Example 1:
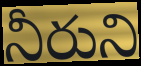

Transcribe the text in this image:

నీరుని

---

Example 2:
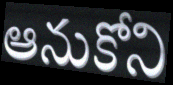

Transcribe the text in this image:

ఆనుకోని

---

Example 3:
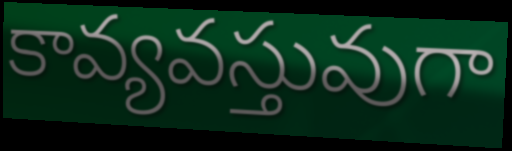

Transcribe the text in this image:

కావ్యవస్తువుగా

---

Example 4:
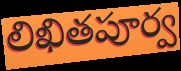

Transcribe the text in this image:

లిఖితపూర్వ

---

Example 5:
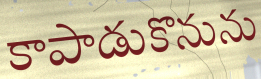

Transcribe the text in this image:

కాపాడుకొనును